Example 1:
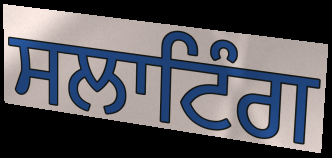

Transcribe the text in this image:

ਸਲਾਟਿੰਗ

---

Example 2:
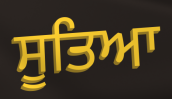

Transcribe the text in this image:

ਸੂਤਿਆ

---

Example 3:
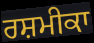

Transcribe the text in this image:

ਰਸ਼ਮੀਕਾ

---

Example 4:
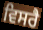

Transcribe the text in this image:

ਵਿਸਰੈ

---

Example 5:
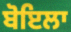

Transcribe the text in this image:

ਬੋਇਲਾ